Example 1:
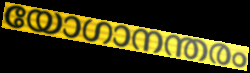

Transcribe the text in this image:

യോഗാനന്തരം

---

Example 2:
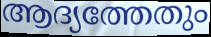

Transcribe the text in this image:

ആദ്യത്തേതും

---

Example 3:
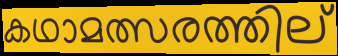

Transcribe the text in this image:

കഥാമത്സരത്തില്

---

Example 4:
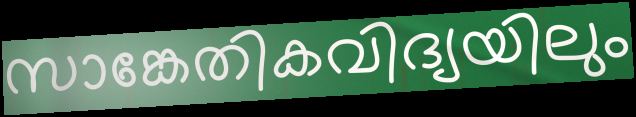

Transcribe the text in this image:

സാങ്കേതികവിദ്യയിലും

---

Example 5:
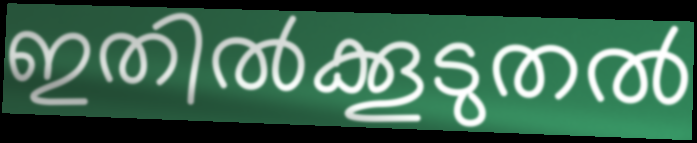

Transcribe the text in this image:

ഇതിൽക്കൂടുതൽ